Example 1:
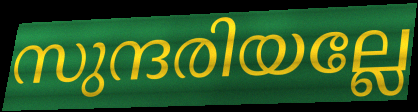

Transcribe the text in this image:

സുന്ദരിയല്ലേ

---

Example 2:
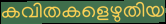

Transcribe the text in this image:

കവിതകളെഴുതിയ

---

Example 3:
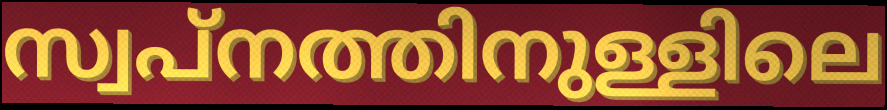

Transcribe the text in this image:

സ്വപ്നത്തിനുള്ളിലെ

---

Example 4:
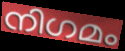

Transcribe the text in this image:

നിഗമം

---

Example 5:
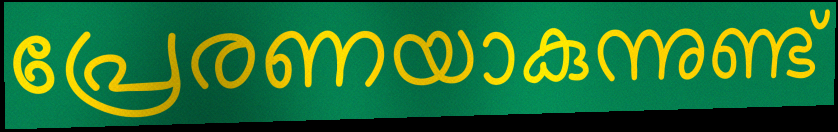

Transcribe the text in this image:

പ്രേരണയാകുന്നുണ്ട്